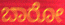
ಬಾರೋ